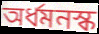
অর্ধমনস্ক